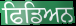
ਫਿਡਿਅਨ